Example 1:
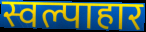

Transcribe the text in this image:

स्‍वल्‍पाहार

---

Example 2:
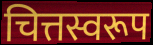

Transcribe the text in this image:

चित्तस्वरूप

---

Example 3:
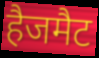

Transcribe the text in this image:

हैजमैट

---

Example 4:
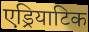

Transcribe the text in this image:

एड्रियाटिक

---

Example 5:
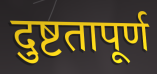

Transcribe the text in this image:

दुष्टतापूर्ण